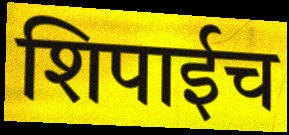
शिपाईच